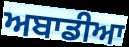
ਅਬਾਡੀਆ